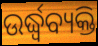
ଉର୍ଦ୍ଧ୍ୱବ୍ୟକ୍ତି